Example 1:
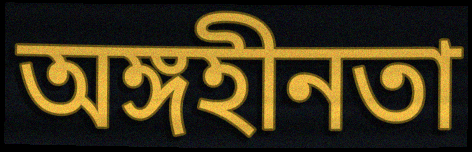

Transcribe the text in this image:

অঙ্গহীনতা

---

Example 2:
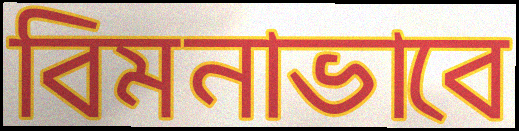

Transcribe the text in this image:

বিমনাভাবে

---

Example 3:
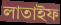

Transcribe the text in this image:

লাতাইফ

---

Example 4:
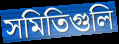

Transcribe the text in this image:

সমিতিগুলি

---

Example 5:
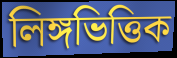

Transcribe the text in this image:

লিঙ্গভিত্তিক